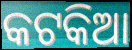
କଟକିଆ